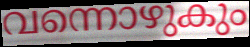
വന്നൊഴുകും